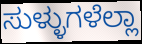
ಸುಳ್ಳುಗಳೆಲ್ಲಾ